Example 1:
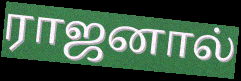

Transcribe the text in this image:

ராஜனால்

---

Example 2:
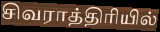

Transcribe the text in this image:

சிவராத்திரியில்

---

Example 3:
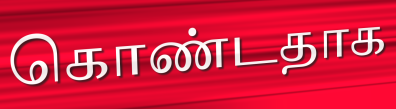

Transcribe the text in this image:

கொண்டதாக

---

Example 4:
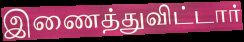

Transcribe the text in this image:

இணைத்துவிட்டார்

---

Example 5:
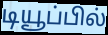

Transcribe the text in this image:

டியூப்பில்